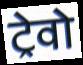
ट्रेवो